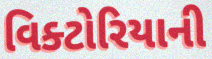
વિક્ટોરિયાની